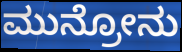
ಮುನ್ರೋನು